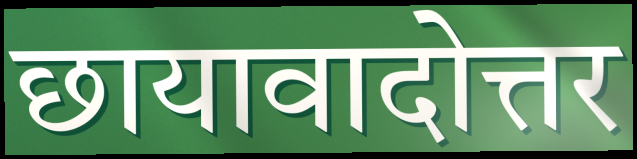
छायावादोत्तर